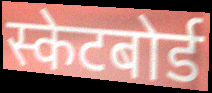
स्केटबोर्ड